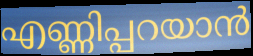
എണ്ണിപ്പറയാൻ